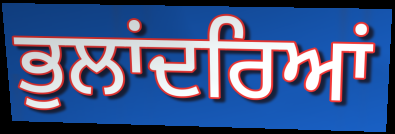
ਭੁਲਾਂਦਰਿਆਂ